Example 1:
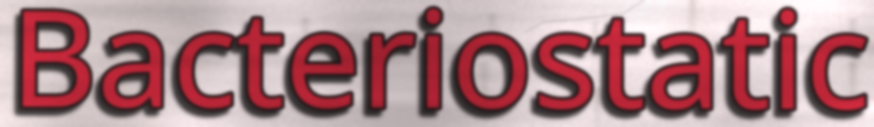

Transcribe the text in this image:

Bacteriostatic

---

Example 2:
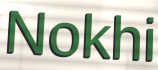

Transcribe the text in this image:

Nokhi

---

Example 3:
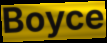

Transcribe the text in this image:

Boyce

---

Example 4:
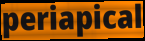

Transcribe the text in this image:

periapical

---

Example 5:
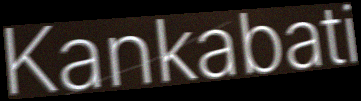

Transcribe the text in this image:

Kankabati